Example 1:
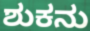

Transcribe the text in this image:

ಶುಕನು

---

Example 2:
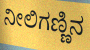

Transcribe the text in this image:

ನೀಲಿಗಣ್ಣಿನ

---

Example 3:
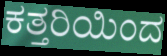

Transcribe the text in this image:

ಕತ್ತರಿಯಿಂದ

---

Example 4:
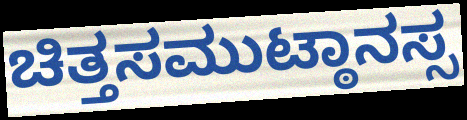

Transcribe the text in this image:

ಚಿತ್ತಸಮುಟ್ಠಾನಸ್ಸ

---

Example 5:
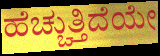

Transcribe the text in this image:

ಹೆಚ್ಚುತ್ತಿದೆಯೇ